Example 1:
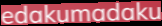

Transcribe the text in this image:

edakumadaku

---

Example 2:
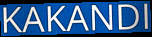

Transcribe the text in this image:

KAKANDI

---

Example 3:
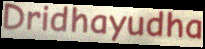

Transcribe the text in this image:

Dridhayudha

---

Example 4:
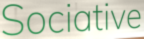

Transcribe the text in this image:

Sociative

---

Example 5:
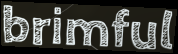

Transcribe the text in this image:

brimful